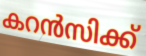
കറൻസിക്ക്